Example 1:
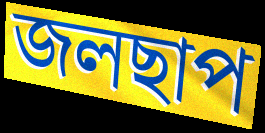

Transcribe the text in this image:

জলছাপ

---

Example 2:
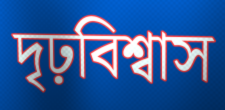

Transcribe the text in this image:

দৃঢ়বিশ্বাস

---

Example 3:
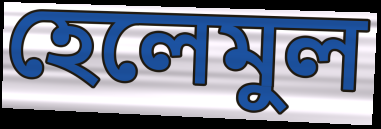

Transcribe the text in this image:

হেলেমুল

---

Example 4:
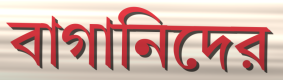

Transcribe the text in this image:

বাগানিদের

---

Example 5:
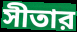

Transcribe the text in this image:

সীতার